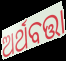
ଅର୍ଥବତ୍ତା